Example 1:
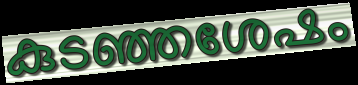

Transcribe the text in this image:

കുടഞ്ഞശേഷം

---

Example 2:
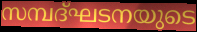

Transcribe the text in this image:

സമ്പദ്ഘടനയുടെ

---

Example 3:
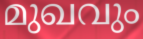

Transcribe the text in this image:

മുഖവും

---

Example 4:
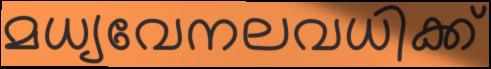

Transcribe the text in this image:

മധ്യവേനലവധിക്ക്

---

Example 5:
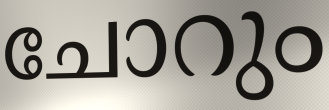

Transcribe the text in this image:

ചോറും